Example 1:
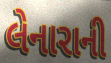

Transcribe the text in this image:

લેનારાની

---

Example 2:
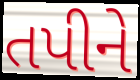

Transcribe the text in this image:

તપીને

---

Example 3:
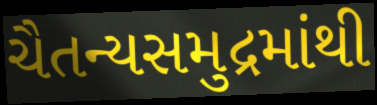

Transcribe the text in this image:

ચૈતન્યસમુદ્રમાંથી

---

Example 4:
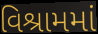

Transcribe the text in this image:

વિશ્રામમાં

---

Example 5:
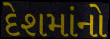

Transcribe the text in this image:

દેશમાંનો